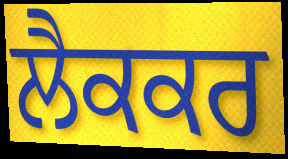
ਲੈਕਕਰ